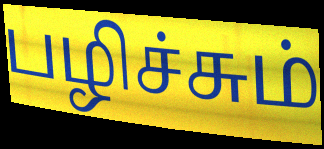
பழிச்சும்